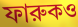
ফারুকও